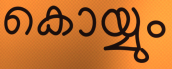
കൊയ്യും